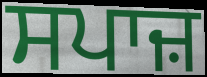
ਸਪਾਜ਼